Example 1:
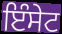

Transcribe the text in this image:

ਇੰਸੇਟ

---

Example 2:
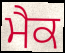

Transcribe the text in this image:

ਮੈਕ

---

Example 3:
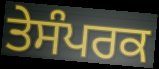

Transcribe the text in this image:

ਤੇਸੰਪਰਕ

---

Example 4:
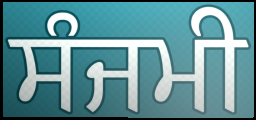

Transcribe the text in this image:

ਸੰਜਮੀ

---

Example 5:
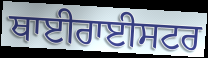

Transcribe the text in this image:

ਥਾਈਰਾਈਸਟਰ